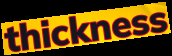
thickness